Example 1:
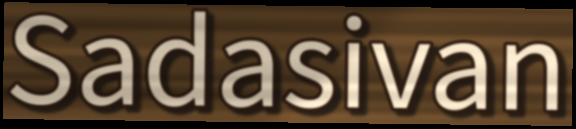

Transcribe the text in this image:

Sadasivan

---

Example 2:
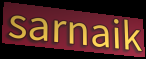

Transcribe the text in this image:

sarnaik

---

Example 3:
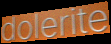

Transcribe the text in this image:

dolerite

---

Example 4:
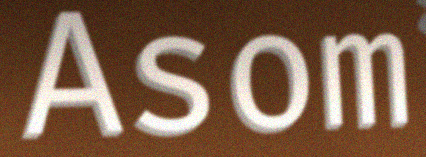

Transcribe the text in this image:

Asom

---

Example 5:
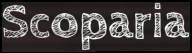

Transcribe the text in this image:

Scoparia